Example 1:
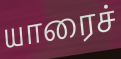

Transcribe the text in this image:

யாரைச்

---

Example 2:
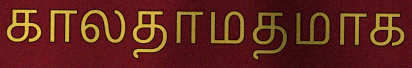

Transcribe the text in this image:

காலதாமதமாக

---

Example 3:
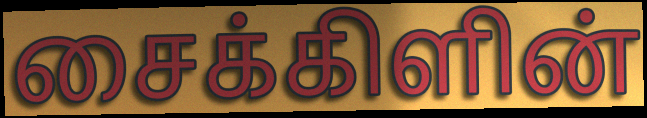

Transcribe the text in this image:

சைக்கிளின்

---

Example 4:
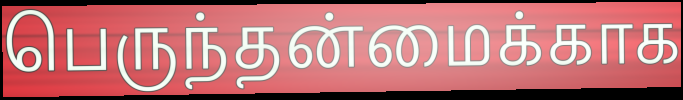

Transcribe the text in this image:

பெருந்தன்மைக்காக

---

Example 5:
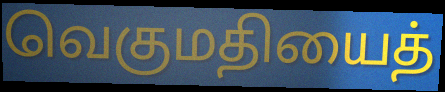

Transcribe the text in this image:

வெகுமதியைத்